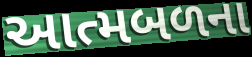
આત્મબળના